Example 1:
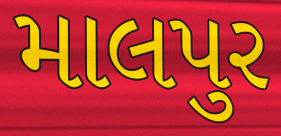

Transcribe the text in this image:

માલપુર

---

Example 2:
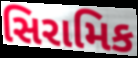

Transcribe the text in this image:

સિરામિક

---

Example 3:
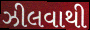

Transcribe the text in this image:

ઝીલવાથી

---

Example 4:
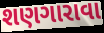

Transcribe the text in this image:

શણગારાવા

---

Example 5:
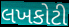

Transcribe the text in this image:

લખકોટી